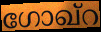
ഗോഖ്റ